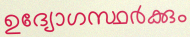
ഉദ്യോഗസ്ഥർക്കും